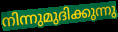
നിന്നുമുദിക്കുന്നു